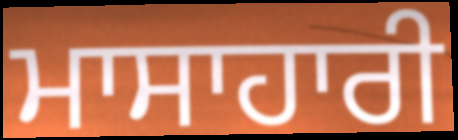
ਮਾਸਾਹਾਰੀ